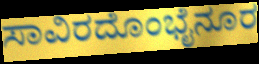
ಸಾವಿರದೊಂಭೈನೂರ